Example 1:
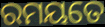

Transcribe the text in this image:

ରମୟତେ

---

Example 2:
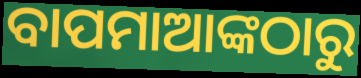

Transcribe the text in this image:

ବାପମାଆଙ୍କଠାରୁ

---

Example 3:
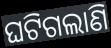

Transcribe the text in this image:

ଘଟିଗଲାଣି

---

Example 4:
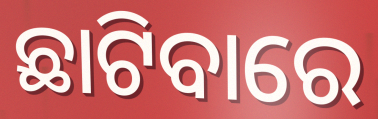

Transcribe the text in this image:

ଛାଟିବାରେ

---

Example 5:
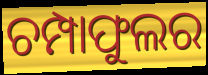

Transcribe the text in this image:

ଚମ୍ପାଫୁଲର